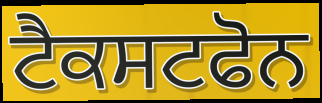
ਟੈਕਸਟਫੋਨ